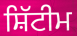
ਸ਼ਿੱਟੀਮ